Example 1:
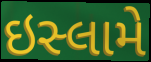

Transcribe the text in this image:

ઇસ્લામે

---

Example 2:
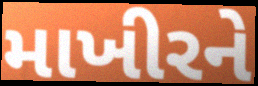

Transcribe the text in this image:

માખીરને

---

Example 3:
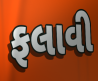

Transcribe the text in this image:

ફલાવી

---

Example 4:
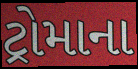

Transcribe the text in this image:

ટ્રોમાના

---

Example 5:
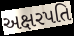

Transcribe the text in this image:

અક્ષરપતિ